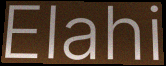
Elahi